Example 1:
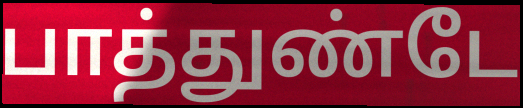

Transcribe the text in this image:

பாத்துண்டே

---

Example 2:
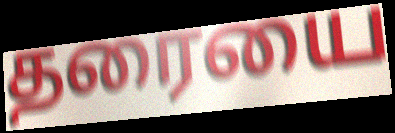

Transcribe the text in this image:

தரையை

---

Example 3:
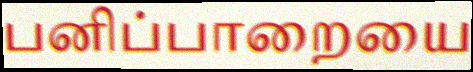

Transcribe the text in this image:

பனிப்பாறையை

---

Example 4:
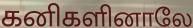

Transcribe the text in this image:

கனிகளினாலே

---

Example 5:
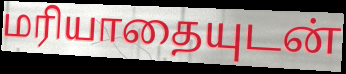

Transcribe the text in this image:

மரியாதையுடன்